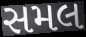
સમલ